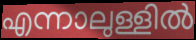
എന്നാലുള്ളിൽ